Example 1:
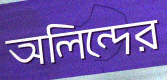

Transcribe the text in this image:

অলিন্দের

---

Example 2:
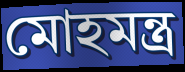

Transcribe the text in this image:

মোহমন্ত্র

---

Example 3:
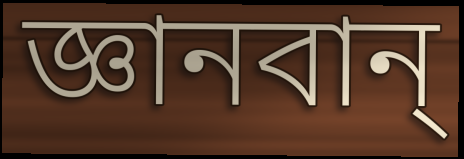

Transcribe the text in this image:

জ্ঞানবান্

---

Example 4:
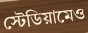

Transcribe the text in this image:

স্টেডিয়ামেও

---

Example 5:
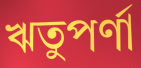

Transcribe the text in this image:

ঋতুপর্ণা